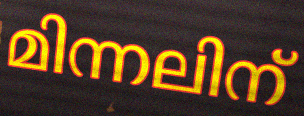
മിന്നലിന്